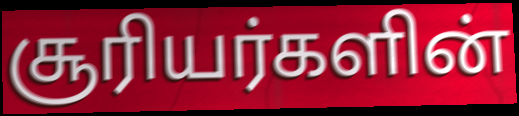
சூரியர்களின்